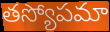
తస్యోపమా